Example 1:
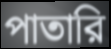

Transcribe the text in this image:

পাতারি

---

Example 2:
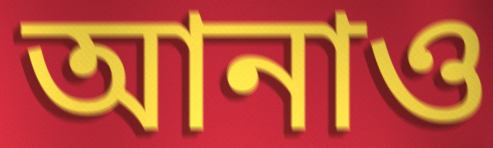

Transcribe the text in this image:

আনাও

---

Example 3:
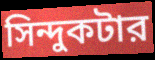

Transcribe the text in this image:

সিন্দুকটার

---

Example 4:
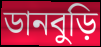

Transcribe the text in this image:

ডানবুড়ি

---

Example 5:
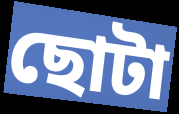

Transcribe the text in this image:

ছোটা